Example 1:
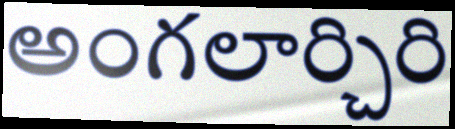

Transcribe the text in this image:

అంగలార్చిరి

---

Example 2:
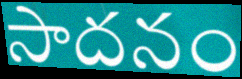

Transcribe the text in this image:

సాదనం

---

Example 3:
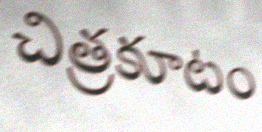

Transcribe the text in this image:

చిత్రకూటం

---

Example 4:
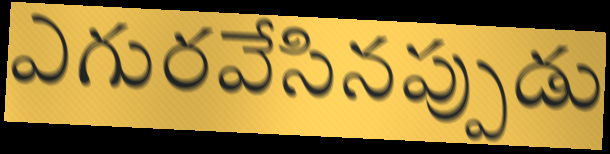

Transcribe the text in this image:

ఎగురవేసినప్పుడు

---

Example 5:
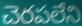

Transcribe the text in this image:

చెరపలేని